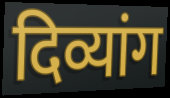
दिव्यांग